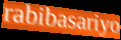
rabibasariyo